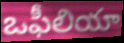
ఒఫీలియా